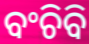
ବଂଚିବି